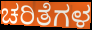
ಚರಿತೆಗಳ